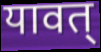
यावत्